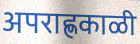
अपराह्णकाळी